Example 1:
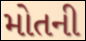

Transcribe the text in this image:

મોતની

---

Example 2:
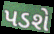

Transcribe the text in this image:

પડશે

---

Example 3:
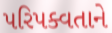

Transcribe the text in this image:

પરિપક્વતાને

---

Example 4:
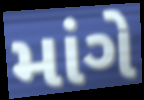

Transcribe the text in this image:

માંગે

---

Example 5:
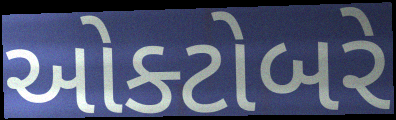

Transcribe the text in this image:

ઓક્ટોબરે